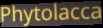
Phytolacca